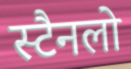
स्टैनलो